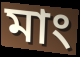
মাং